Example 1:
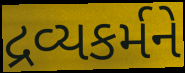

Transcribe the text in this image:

દ્રવ્યકર્મને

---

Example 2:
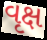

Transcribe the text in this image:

વૃક્ષ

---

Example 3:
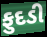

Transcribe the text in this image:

ફુદડી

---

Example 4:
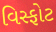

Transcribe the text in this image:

વિસ્ફોટ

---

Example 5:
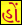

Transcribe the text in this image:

હોં